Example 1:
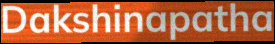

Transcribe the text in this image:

Dakshinapatha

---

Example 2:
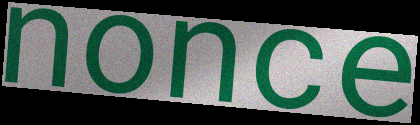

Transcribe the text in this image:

nonce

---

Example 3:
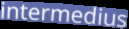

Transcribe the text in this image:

intermedius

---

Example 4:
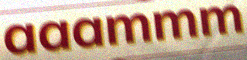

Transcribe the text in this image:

aaammm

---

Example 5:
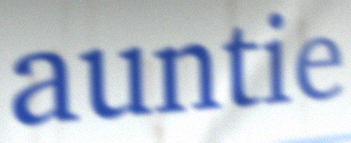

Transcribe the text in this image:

auntie